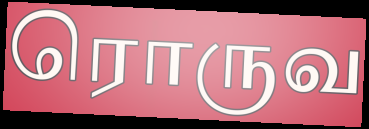
ரொருவ